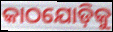
କାଠଯୋଡ଼ିକୁ